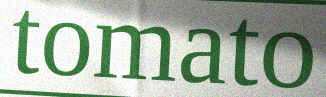
tomato